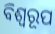
ବିଶ୍ବରୂପ